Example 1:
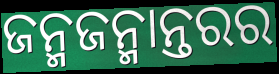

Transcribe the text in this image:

ଜନ୍ମଜନ୍ମାନ୍ତରର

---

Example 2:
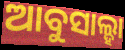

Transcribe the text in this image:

ଆବୁସାଲ୍ହା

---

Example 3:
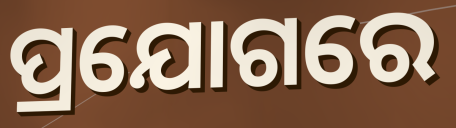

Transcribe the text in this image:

ପ୍ରଯୋଗରେ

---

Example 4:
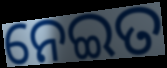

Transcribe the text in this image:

ନେଇତ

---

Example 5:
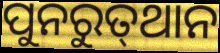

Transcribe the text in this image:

ପୁନରୁତ୍‍ଥାନ